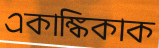
একাঙ্কিকাক